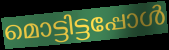
മൊട്ടിട്ടപ്പോൾ